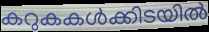
കറുകകൾക്കിടയിൽ